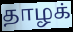
தாழக்